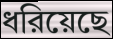
ধরিয়েছে